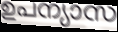
ഉപന്യാസ